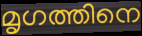
മൃഗത്തിനെ